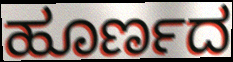
ಹೂರ್ಣದ